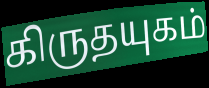
கிருதயுகம்